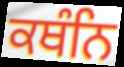
ਕਥੰਨਿ